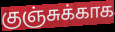
குஞ்சுக்காக